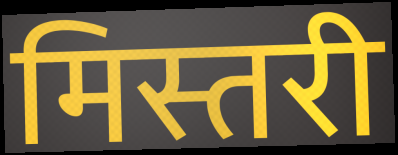
मिस्तरी